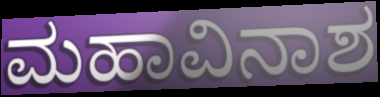
ಮಹಾವಿನಾಶ